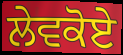
ਲੇਵਕੋਏ